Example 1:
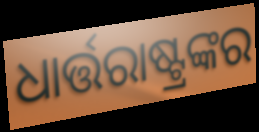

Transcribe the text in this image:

ଧାର୍ତ୍ତରାଷ୍ଟ୍ରଙ୍କର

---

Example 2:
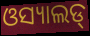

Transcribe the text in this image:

ଓସ୍ୟାଲଡ୍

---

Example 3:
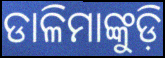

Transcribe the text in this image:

ଡାଳିମାଙ୍କୁଡ଼ି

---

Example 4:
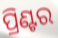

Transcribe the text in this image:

ପ୍ରିଣ୍ଟର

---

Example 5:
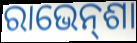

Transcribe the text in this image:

ରାଭେନ୍‌ଶା